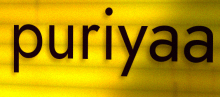
puriyaa